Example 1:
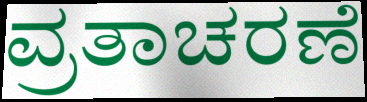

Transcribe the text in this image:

ವ್ರತಾಚರಣೆ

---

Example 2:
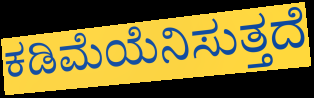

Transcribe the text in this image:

ಕಡಿಮೆಯೆನಿಸುತ್ತದೆ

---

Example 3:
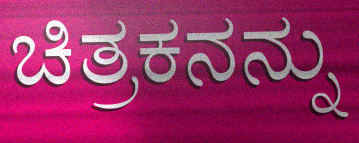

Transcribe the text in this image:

ಚಿತ್ರಕನನ್ನು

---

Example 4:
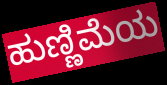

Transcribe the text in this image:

ಹುಣ್ಣಿಮೆಯ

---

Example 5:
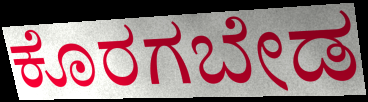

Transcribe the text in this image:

ಕೊರಗಬೇಡ